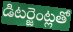
డిటర్జెంట్లతో